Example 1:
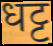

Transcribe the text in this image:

धट्ट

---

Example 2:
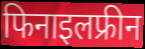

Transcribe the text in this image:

फिनाइलफ्रीन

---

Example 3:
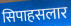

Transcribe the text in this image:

सिपाहसलार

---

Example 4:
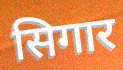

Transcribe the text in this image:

सिगार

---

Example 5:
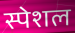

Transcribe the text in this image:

स्‍पेशल